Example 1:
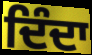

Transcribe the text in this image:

ਦਿੰਦਾ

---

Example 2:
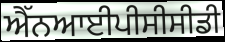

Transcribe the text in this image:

ਐੱਨਆਈਪੀਸੀਸੀਡੀ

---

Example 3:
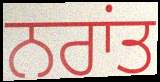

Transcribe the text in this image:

ਨਰਾਂਤ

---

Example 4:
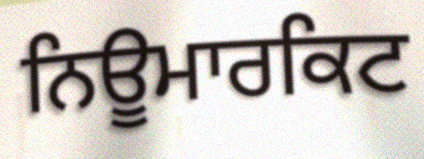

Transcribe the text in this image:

ਨਿਊਮਾਰਕਿਟ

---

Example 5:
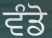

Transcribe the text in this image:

ਵੰਡੋ